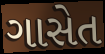
ગાસેત